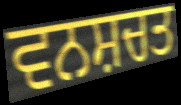
ਵਨਸ਼ਚਤ